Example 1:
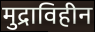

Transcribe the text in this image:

मुद्राविहीन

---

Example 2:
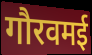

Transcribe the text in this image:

गौरवमई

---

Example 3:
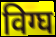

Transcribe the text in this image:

विग्घ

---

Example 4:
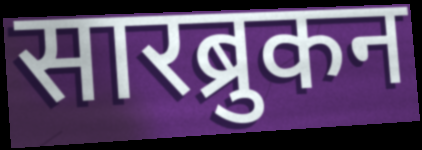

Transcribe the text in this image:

सारब्रुकन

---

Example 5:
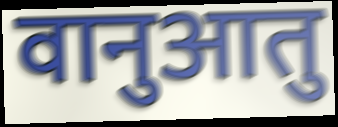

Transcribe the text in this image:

वानुआतु